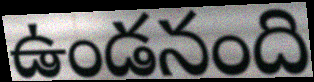
ఉండనంది